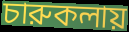
চারুকলায়